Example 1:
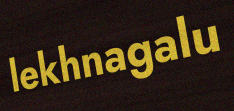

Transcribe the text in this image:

lekhnagalu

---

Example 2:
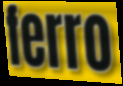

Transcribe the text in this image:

ferro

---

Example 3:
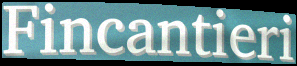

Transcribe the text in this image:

Fincantieri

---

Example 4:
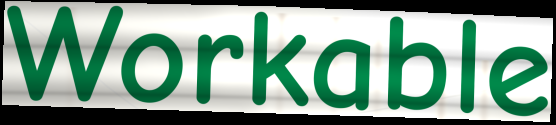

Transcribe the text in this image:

Workable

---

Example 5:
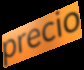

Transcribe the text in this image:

precio